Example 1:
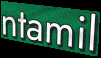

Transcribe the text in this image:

ntamil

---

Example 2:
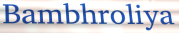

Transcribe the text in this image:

Bambhroliya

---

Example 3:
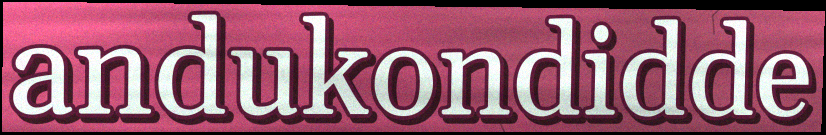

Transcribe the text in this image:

andukondidde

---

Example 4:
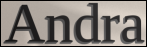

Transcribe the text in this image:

Andra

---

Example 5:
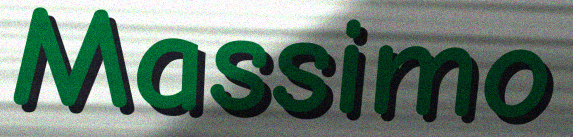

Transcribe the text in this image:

Massimo